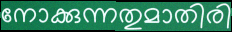
നോക്കുന്നതുമാതിരി